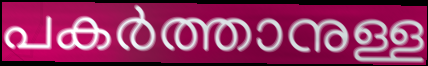
പകർത്താനുള്ള